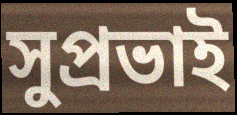
সুপ্রভাই